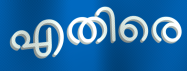
എതിരെ